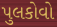
પુલકોવો